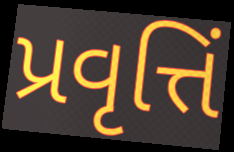
પ્રવૃત્તિં